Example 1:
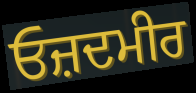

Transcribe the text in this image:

ਓਜ਼ਦਮੀਰ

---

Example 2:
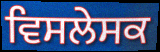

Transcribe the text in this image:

ਵਿਸਲੇਸਕ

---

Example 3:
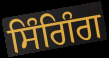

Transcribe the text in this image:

ਸਿੰਗਿੰਗ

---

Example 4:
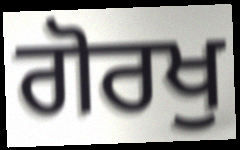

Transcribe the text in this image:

ਗੋਰਖੁ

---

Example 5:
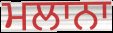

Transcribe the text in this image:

ਮਲਾਨਾ